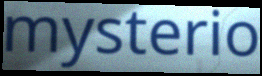
mysterio